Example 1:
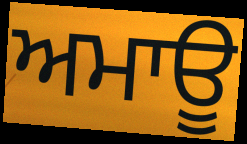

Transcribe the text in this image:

ਅਮਾਊ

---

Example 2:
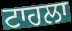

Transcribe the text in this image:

ਟਾਹਲਾ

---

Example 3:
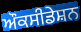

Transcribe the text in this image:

ਔਕਸੀਡੇਸ਼ਨ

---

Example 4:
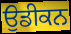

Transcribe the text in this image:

ਉਡੀਕਨ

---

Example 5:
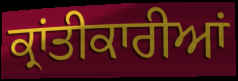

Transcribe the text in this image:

ਕ੍ਰਾਂਤੀਕਾਰੀਆਂ